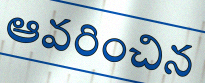
ఆవరించిన